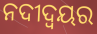
ନଦୀଦ୍ବୟର